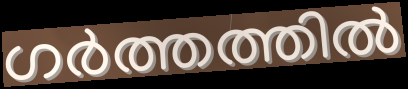
ഗർത്തത്തിൽ